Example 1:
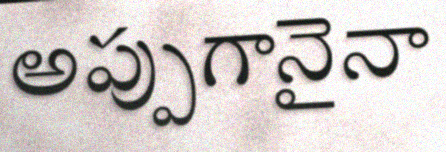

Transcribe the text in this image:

అప్పుగానైనా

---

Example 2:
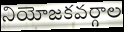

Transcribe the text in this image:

నియోజకవర్గాల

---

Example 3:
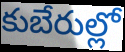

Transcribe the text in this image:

కుబేరుల్లో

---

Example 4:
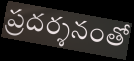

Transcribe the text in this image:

ప్రదర్శనంతో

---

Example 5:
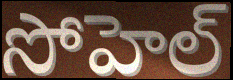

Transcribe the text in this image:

సోహెల్